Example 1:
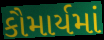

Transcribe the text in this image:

કૌમાર્યમાં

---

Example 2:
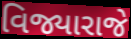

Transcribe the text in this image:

વિજ્યારાજે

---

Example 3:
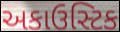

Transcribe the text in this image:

અકાઉસ્ટિક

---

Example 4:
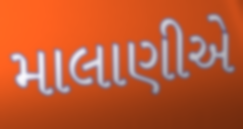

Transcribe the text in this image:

માલાણીએ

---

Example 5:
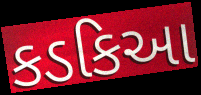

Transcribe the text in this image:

કડકિઆ